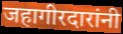
जहागीरदारांनी